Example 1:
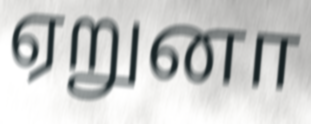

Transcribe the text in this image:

ஏறுனா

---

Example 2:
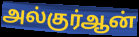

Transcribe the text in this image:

அல்குர்ஆன்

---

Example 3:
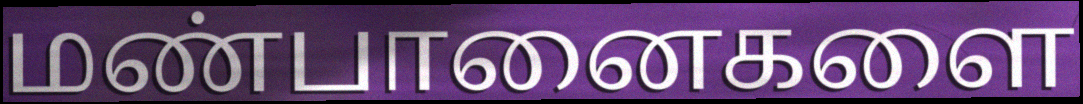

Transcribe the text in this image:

மண்பானைகளை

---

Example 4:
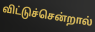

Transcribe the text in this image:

விட்டுச்சென்றால்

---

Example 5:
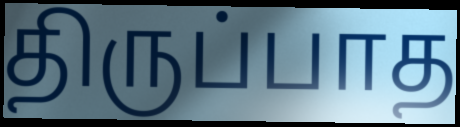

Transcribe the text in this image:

திருப்பாத